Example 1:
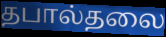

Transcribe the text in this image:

தபால்தலை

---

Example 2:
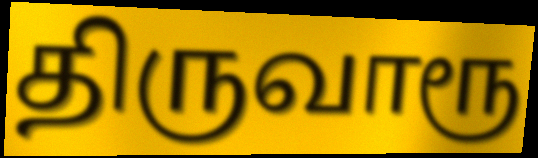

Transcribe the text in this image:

திருவாரூ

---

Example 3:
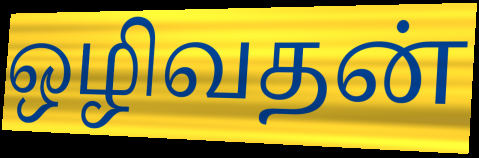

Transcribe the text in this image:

ஒழிவதன்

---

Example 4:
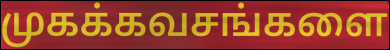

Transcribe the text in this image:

முகக்கவசங்களை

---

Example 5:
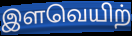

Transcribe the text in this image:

இளவெயிற்